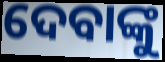
ଦେବାଙ୍କୁ